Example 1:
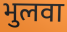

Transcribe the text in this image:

भुलवा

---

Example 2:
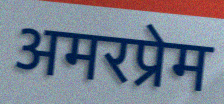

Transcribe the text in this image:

अमरप्रेम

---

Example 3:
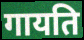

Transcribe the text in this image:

गायति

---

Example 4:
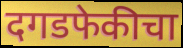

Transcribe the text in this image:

दगडफेकीचा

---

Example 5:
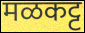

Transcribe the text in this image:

मळकट्ट